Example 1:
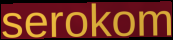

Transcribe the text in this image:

serokom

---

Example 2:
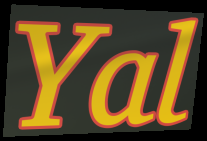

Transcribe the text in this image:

Yal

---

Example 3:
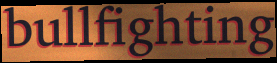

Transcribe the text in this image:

bullfighting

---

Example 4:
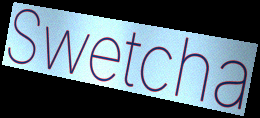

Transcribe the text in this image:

Swetcha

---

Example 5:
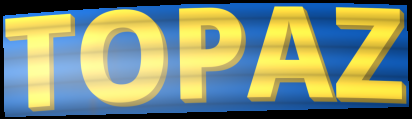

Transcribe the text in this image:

TOPAZ